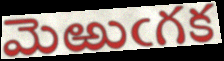
మెఱుఁగక